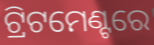
ଟ୍ରିଟମେଣ୍ଟରେ